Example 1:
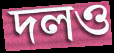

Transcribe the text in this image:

দলও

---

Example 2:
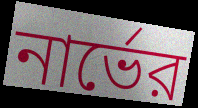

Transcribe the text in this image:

নার্ভের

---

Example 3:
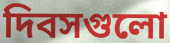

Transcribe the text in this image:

দিবসগুলো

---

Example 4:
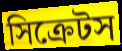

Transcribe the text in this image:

সিক্রেটস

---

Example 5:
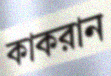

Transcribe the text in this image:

কাকরান